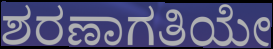
ಶರಣಾಗತಿಯೇ